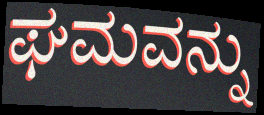
ಘಮವನ್ನು